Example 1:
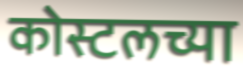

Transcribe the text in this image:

कोस्टलच्या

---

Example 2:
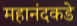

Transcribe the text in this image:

महानंदकडे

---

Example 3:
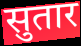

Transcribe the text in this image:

सुतार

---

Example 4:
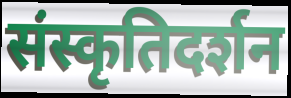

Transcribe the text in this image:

संस्कृतिदर्शन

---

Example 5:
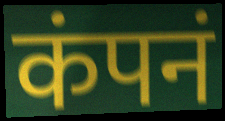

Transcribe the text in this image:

कंपनं